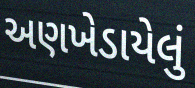
અણખેડાયેલું